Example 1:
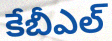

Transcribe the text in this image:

కేబీఎల్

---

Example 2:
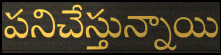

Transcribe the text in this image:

పనిచేస్తున్నాయి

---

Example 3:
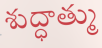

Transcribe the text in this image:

శుద్ధాత్ము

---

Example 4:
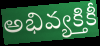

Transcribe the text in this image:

అభివ్యక్తికీ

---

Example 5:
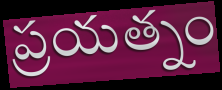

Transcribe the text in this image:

ప్రయత్నం